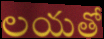
లయతో